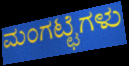
ಮಂಗಟ್ಟೆಗಳು